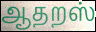
ஆதறஸ்